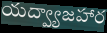
యద్వ్యాజహార